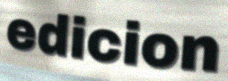
edicion